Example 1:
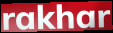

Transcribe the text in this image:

rakhar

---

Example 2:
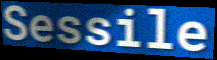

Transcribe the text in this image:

Sessile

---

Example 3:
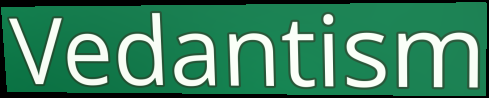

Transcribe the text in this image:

Vedantism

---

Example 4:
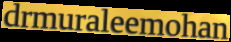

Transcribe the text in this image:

drmuraleemohan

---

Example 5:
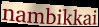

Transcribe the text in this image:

nambikkai